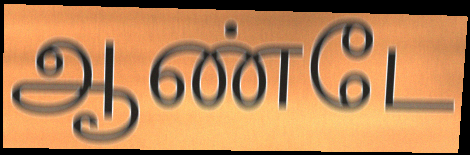
ஆண்டே